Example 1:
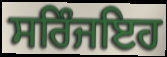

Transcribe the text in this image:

ਸਰਿੰਜਇਹ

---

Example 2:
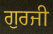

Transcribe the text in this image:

ਗੁਰਜੀ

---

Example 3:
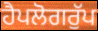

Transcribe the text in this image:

ਹੈਪਲੋਗਰੁੱਪ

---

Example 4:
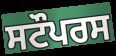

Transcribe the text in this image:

ਸਟੌਪਰਸ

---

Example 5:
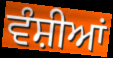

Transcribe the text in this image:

ਵੰਸ਼ੀਆਂ